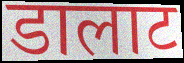
डालाट